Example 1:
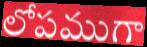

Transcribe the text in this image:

లోపముగా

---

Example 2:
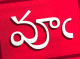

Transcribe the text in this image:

వూఁ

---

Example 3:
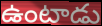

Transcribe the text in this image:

ఉంటాడు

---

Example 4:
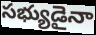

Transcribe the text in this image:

సభ్యుడైనా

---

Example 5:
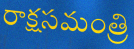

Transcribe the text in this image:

రాక్షసమంత్రి